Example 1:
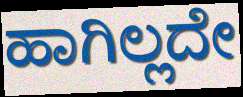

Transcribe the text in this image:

ಹಾಗಿಲ್ಲದೇ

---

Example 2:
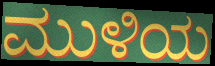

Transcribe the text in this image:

ಮುಳಿಯ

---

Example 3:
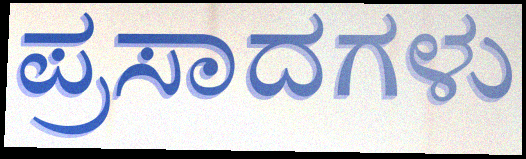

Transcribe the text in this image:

ಪ್ರಸಾದಗಳು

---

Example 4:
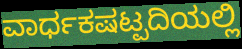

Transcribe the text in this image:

ವಾರ್ಧಕಷಟ್ಪದಿಯಲ್ಲಿ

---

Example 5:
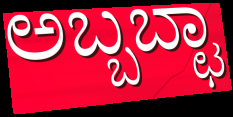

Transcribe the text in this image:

ಅಬ್ಬಬ್ಟಾ